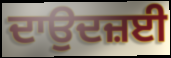
ਦਾਉਦਜ਼ਈ